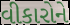
વીકારોને